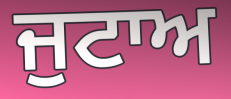
ਜੁਟਾਅ